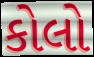
કોલો